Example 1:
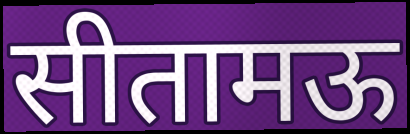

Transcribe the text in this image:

सीतामऊ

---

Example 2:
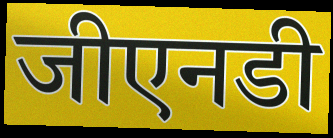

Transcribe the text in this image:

जीएनडी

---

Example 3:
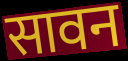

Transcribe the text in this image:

सावन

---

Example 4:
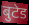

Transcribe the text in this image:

बुटेड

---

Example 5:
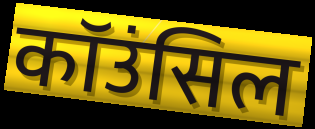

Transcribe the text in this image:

कॉउंसिल